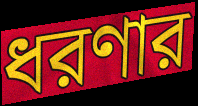
ধরণার